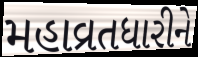
મહાવ્રતધારીને